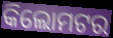
କିଲୋମଟର